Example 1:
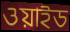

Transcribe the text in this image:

ওয়াইড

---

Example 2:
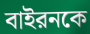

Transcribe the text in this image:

বাইরনকে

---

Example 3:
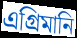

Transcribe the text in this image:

এগ্রিমানি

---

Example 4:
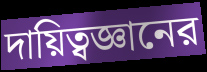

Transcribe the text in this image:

দায়িত্বজ্ঞানের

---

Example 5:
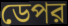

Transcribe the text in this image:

ডেপর